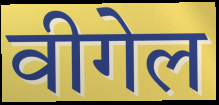
वीगेल